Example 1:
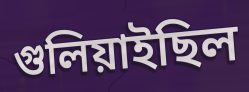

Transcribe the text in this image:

গুলিয়াইছিল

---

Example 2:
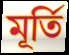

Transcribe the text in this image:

মূৰ্তি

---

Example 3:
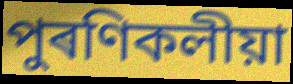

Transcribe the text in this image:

পুৰণিকলীয়া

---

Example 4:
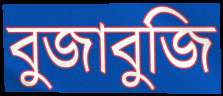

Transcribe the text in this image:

বুজাবুজি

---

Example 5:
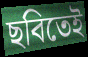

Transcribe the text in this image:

ছবিতেই